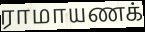
ராமாயணக்